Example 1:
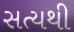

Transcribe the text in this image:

સત્યથી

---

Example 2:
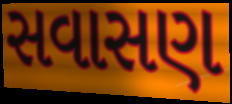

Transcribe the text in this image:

સવાસણ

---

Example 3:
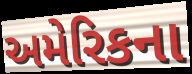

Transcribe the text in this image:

અમેરિકના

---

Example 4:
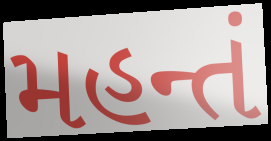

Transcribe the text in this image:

મહન્તં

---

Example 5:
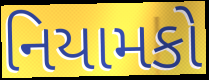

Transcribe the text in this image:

નિયામકો